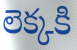
లెక్కకి